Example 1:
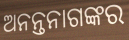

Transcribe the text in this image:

ଅନନ୍ତନାଗଙ୍କର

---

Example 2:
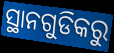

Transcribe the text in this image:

ସ୍ଥାନଗୁଡିକରୁ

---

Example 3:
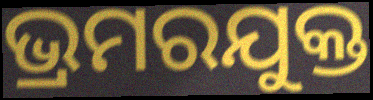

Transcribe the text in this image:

ଭ୍ରମରଯୁକ୍ତ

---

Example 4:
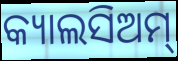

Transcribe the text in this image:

କ୍ୟାଲସିଅମ୍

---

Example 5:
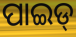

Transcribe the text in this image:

ପାଇଡ୍